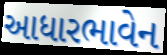
આધારભાવેન